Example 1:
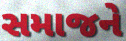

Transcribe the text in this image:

સમાજને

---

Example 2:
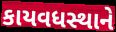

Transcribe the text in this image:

કાયવધસ્થાને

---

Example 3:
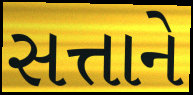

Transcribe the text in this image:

સત્તાને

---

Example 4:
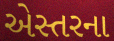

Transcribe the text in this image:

એસ્તરના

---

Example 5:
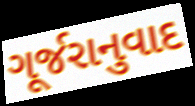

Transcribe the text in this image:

ગૂર્જરાનુવાદ